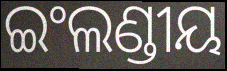
ଇଂଲଣ୍ଡୀୟ